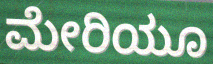
ಮೇರಿಯೂ